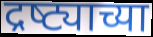
द्रष्ट्याच्या